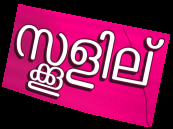
സ്ക്കൂളില്